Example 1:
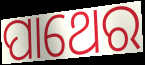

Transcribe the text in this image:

ପାଥେର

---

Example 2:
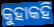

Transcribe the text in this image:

କୁହାକହି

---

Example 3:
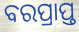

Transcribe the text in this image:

ବରପ୍ରାପ୍ତ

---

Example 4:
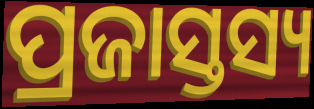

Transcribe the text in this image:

ପ୍ରଜାସ୍ତସ୍ୟ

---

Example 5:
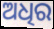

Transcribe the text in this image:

ଅଧିର